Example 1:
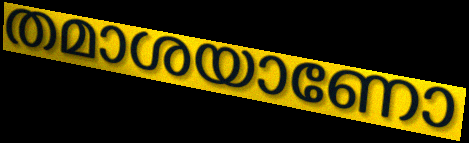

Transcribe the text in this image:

തമാശയാണോ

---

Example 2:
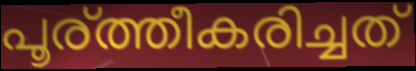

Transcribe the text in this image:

പൂര്ത്തീകരിച്ചത്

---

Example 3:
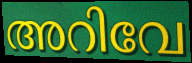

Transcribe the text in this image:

അറിവേ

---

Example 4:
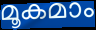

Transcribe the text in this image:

മൂകമാം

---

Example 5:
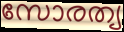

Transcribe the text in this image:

സോരത്യ